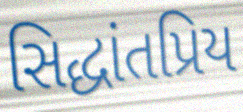
સિદ્ધાંતપ્રિય